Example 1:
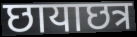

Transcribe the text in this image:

छायाछत्र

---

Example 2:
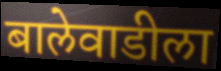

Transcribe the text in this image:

बालेवाडीला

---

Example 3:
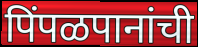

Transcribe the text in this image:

पिंपळपानांची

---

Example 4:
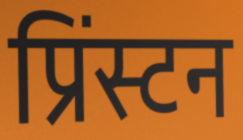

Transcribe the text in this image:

प्रिंस्टन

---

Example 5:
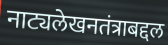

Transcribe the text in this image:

नाट्यलेखनतंत्राबद्दल